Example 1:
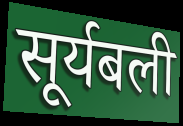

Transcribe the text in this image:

सूर्यबली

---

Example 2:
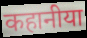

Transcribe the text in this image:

कहानीया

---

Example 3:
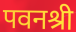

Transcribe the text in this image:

पवनश्री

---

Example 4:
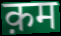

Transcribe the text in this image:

क़म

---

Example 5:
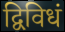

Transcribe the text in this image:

द्विविधं